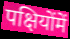
पक्षियोंमें